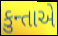
કુન્તાએ